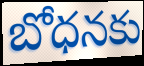
బోధనకు